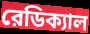
রেডিক্যাল